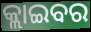
କ୍ଲାଇବର